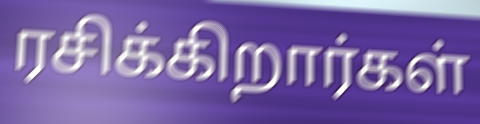
ரசிக்கிறார்கள்